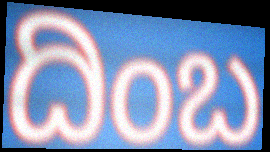
ದಿಂಬ